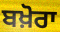
ਬਖ਼ੋਰਾ